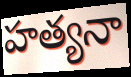
హత్యనా